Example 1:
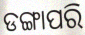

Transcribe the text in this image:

ଡଙ୍ଗାପରି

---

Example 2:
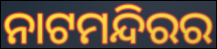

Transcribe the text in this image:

ନାଟମନ୍ଦିରର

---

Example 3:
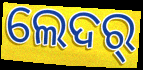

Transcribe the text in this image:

ଲେଦର୍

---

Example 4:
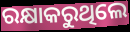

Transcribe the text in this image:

ରକ୍ଷାକରୁଥିଲେ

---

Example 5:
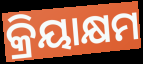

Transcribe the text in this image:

କ୍ରିୟାକ୍ଷମ